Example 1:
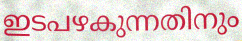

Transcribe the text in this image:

ഇടപഴകുന്നതിനും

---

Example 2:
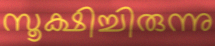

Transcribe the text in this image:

സൂക്ഷിച്ചിരുന്നു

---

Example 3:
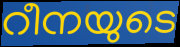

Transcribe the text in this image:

റീനയുടെ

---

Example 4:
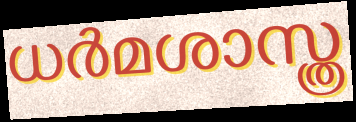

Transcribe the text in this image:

ധർമശാസ്ത്ര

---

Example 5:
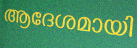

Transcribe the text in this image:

ആദേശമായി